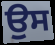
ਉਸ